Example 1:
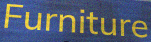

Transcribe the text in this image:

Furniture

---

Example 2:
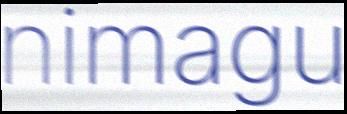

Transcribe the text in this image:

nimagu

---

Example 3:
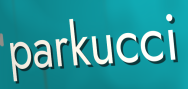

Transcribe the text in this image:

parkucci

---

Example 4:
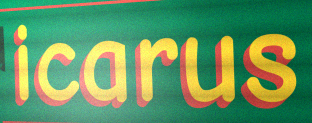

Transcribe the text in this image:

icarus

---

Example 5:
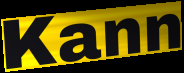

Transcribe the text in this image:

Kann